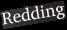
Redding